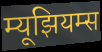
म्यूझियम्स